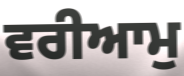
ਵਰੀਆਮੁ